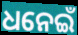
ଧନେଇଁ